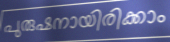
പുരുഷനായിരിക്കാം